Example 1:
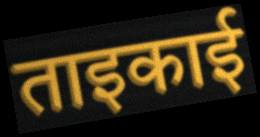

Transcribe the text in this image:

ताइकाई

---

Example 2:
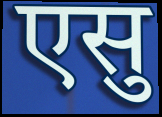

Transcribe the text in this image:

एसु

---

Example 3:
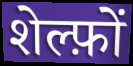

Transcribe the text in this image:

शेल्फ़ों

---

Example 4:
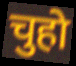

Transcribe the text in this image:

चुहो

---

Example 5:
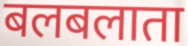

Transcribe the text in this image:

बलबलाता